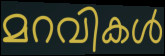
മറവികൾ